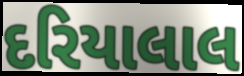
દરિયાલાલ